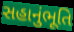
સહાનુંભૂતિ